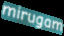
mirugam